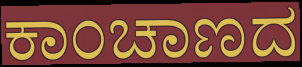
ಕಾಂಚಾಣದ